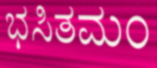
ಭಸಿತಮಂ